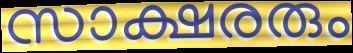
സാക്ഷരരും